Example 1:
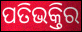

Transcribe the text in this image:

ପତିଭକ୍ତିର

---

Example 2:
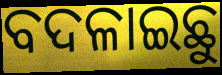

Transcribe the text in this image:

ବଦଳାଇଛୁ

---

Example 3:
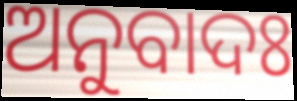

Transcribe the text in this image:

ଅନୁବାଦଃ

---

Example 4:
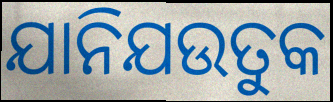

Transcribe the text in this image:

ଯାନିଯଉତୁକ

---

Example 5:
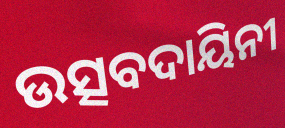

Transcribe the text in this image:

ଉତ୍ସବଦାୟିନୀ